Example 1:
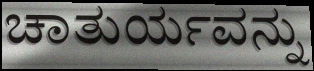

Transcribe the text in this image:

ಚಾತುರ್ಯವನ್ನು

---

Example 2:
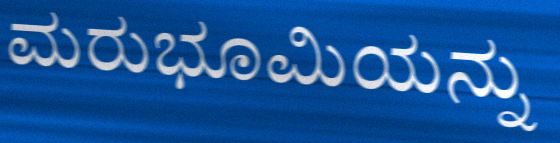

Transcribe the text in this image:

ಮರುಭೂಮಿಯನ್ನು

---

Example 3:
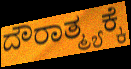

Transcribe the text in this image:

ದೌರಾತ್ಮ್ಯಕ್ಕೆ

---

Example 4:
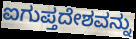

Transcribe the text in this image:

ಐಗುಪ್ತದೇಶವನ್ನು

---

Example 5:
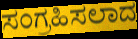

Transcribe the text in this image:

ಸಂಗ್ರಹಿಸಲಾದ